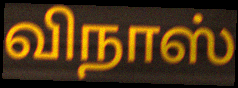
விநாஸ்